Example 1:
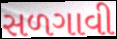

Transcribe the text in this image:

સળગાવી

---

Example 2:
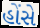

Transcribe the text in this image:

હોંસે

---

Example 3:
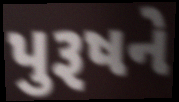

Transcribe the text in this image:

પુરૂષને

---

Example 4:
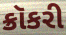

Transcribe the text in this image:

ક્રૉકરી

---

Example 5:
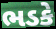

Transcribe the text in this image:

ભડકે